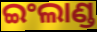
ଇଂଲାଣ୍ଡ